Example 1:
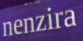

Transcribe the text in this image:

nenzira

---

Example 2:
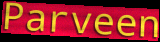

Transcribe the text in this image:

Parveen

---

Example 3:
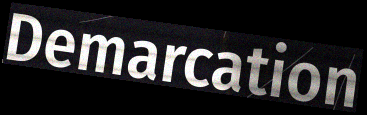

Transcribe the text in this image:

Demarcation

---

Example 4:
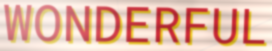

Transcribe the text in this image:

WONDERFUL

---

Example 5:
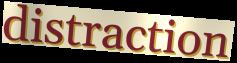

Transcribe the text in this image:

distraction